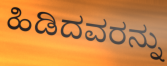
ಹಿಡಿದವರನ್ನು